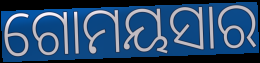
ଗୋମୟସାର